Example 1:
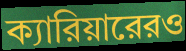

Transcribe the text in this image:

ক্যারিয়ারেরও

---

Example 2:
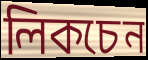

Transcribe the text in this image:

লিকচেন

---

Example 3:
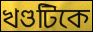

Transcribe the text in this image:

খণ্ডটিকে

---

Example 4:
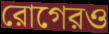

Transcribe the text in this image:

রোগেরও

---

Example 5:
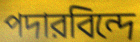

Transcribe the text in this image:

পদারবিন্দে